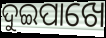
ଦୁଇପାଖେ